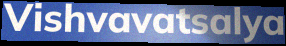
Vishvavatsalya